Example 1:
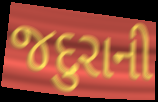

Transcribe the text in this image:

જદુરાની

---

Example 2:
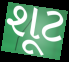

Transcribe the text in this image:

શૂટ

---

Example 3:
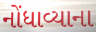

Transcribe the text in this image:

નોંધાવ્યાના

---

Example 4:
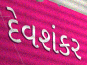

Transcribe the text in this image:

દેવશંકર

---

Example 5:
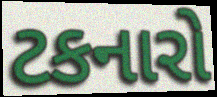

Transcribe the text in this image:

ટકનારો